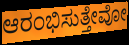
ಆರಂಭಿಸುತ್ತೇವೋ